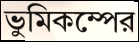
ভুমিকম্পের